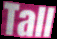
Tall